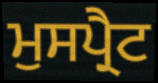
ਮੁਸਪ੍ਰੈਟ